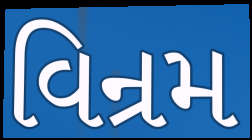
વિન્રમ